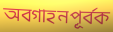
অবগাহনপূর্বক